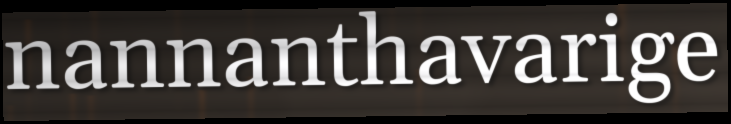
nannanthavarige